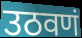
उठवणं